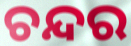
ଚନ୍ଦର